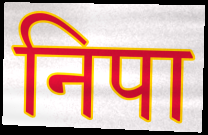
निपा